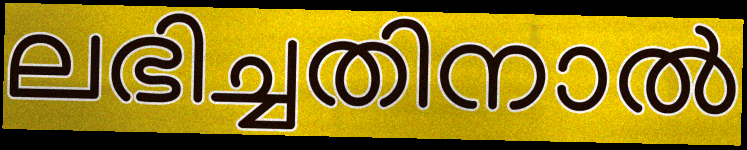
ലഭിച്ചതിനാൽ